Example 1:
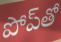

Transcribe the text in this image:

పోప్‌తో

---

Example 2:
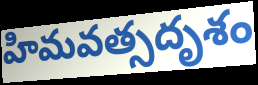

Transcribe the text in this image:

హిమవత్సదృశం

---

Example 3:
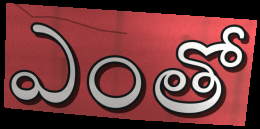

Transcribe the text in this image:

ఎంతో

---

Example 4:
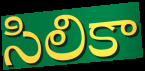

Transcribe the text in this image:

సిలికా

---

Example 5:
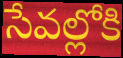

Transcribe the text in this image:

సేవల్లోకి